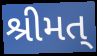
શ્રીમત્